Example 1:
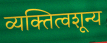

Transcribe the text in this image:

व्यक्तित्वशून्य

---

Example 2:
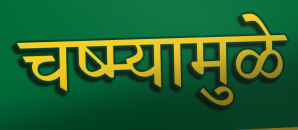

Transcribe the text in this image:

चष्म्यामुळे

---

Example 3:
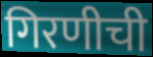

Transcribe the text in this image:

गिरणीची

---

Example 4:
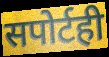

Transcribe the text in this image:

सपोर्टही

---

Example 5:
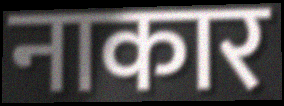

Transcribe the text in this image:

नाकार